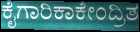
ಕೈಗಾರಿಕಾಕೇಂದ್ರಿತ